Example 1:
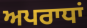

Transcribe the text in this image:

ਅਪਰਾਧਾਂ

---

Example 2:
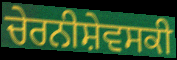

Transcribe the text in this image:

ਚੇਰਨੀਸ਼ੇਵਸਕੀ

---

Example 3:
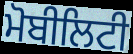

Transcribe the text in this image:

ਮੋਬੀਲਿਟੀ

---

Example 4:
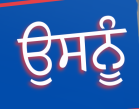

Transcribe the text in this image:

ਉਸਨੂੰ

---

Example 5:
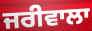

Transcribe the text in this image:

ਜਰੀਵਾਲਾ